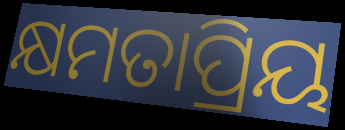
କ୍ଷମତାପ୍ରିୟ